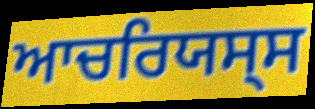
ਆਚਰਿਯਸ੍ਸ